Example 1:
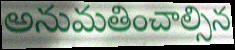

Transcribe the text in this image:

అనుమతించాల్సిన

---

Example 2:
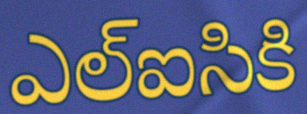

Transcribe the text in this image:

ఎల్ఐసికి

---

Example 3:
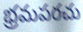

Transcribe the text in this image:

భ్రమపరచు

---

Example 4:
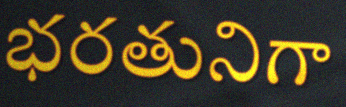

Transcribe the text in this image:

భరతునిగా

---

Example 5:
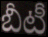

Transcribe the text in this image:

బీటీ